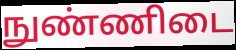
நுண்ணிடை